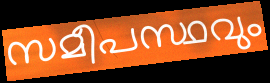
സമീപസ്ഥവും